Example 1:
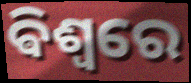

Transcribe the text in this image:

ଵିଶ୍ୱରେ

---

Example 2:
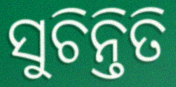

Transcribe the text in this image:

ସୁଚିନ୍ତିତି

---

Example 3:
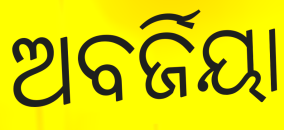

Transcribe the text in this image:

ଅବର୍ଜିୟା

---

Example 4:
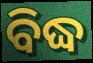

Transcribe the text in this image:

ବିଦ୍ଧ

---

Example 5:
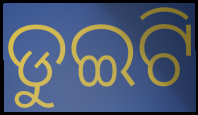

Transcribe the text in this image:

ଡୁଇଟି